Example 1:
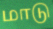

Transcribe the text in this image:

மாடு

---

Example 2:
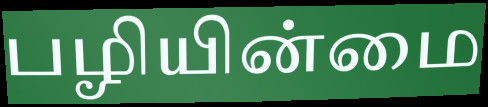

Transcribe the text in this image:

பழியின்மை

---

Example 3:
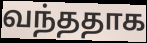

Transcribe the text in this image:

வந்ததாக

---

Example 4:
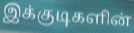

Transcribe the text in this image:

இக்குடிகளின்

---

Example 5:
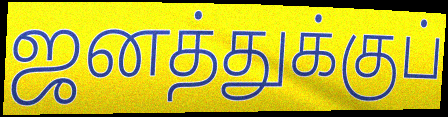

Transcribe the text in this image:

ஜனத்துக்குப்